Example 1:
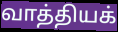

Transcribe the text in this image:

வாத்தியக்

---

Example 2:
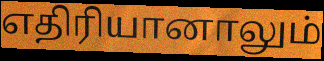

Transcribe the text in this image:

எதிரியானாலும்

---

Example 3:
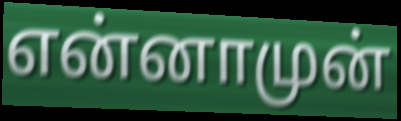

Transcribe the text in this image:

என்னாமுன்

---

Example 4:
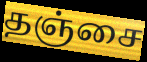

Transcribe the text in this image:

தஞ்சை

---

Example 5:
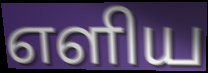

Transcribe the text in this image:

எளிய